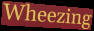
Wheezing